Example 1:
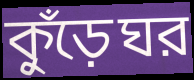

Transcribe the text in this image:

কুঁড়েঘর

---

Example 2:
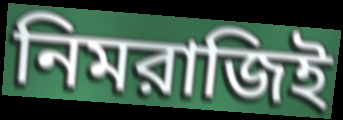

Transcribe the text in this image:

নিমরাজিই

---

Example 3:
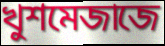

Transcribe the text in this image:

খুশমেজাজে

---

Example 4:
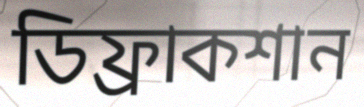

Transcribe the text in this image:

ডিফ্রাকশান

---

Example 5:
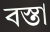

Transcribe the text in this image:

বস্তা